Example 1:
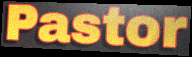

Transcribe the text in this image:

Pastor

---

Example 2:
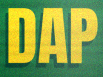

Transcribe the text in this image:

DAP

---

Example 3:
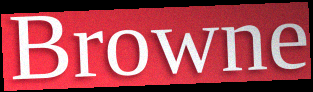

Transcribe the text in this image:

Browne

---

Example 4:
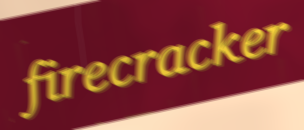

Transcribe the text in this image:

firecracker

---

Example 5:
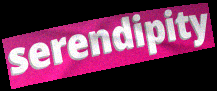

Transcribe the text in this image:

serendipity